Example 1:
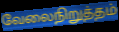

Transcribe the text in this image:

வேலைநிறுத்தம்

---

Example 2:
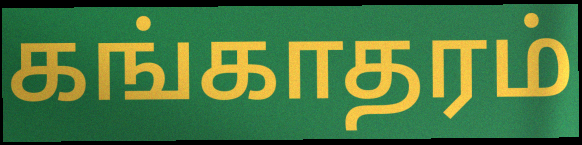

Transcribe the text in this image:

கங்காதரம்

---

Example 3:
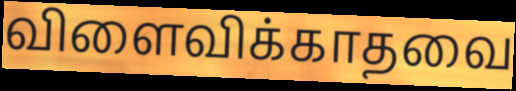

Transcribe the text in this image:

விளைவிக்காதவை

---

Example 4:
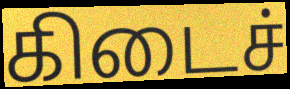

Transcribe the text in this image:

கிடைச்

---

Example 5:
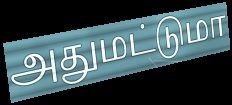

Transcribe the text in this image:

அதுமட்டுமா